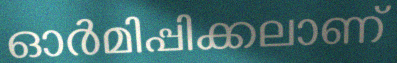
ഓർമിപ്പിക്കലാണ്